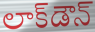
లాక్‌డౌన్